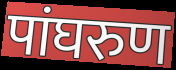
पांघरुण